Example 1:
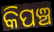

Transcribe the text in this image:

କିପଞ୍ଚ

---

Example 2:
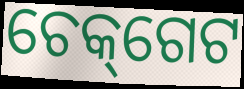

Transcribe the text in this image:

ଚେକ୍‌ଗେଟ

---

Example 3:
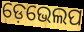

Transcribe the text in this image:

ଡ଼େଭେଲପ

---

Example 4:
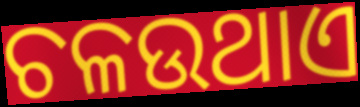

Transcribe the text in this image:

ଚଳଉଥାଏ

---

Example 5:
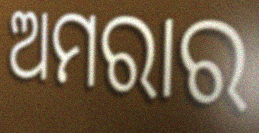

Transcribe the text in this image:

ଅମରାର